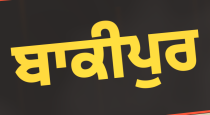
ਬਾਕੀਪੁਰ